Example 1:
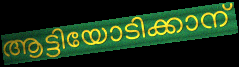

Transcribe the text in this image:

ആട്ടിയോടിക്കാന്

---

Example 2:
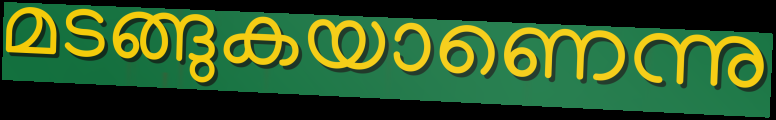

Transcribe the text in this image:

മടങ്ങുകയാണെന്നു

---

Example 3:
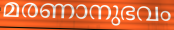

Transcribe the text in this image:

മരണാനുഭവം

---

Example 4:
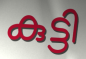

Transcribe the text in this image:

കുട്ടി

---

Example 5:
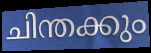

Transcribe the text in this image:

ചിന്തക്കും